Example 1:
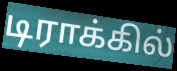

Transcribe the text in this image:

டிராக்கில்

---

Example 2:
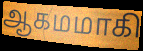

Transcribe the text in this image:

ஆகமமாகி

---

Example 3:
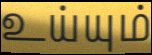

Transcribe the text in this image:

உய்யும்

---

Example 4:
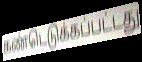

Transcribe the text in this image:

கண்டெடுக்கப்பட்டது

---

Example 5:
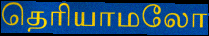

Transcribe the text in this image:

தெரியாமலோ